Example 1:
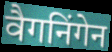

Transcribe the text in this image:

वैगनिंगेन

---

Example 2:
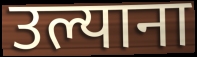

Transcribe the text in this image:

उल्याना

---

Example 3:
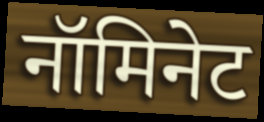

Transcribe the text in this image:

नॉमिनेट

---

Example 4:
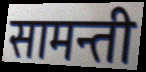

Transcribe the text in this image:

सामन्ती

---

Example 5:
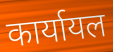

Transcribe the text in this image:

कार्यायल